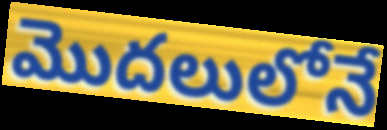
మొదలులోనే